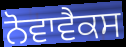
ਨੋਵਾਵੈਕਸ